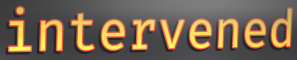
intervened